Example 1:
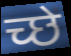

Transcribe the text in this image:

च्छे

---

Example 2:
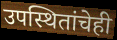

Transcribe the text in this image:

उपस्थितांचेही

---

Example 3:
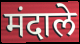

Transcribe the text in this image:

मंदाले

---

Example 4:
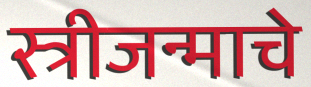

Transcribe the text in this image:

स्त्रीजन्माचे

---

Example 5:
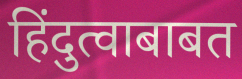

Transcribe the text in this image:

हिंदुत्वाबाबत